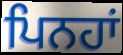
ਪਿਨਹਾਂ